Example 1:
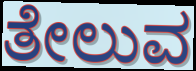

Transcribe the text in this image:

ತೇಲುವ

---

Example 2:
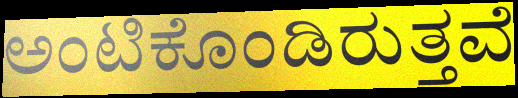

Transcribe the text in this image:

ಅಂಟಿಕೊಂಡಿರುತ್ತವೆ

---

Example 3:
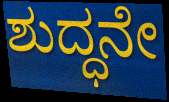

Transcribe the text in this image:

ಶುದ್ಧನೇ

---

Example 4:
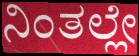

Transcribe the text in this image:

ನಿಂತಲ್ಲೇ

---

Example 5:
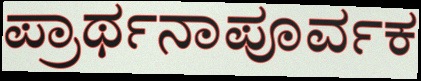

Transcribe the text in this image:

ಪ್ರಾರ್ಥನಾಪೂರ್ವಕ